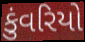
કુંવરિયો